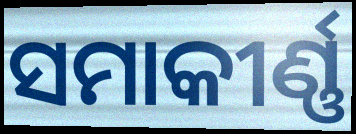
ସମାକୀର୍ଣ୍ଣ